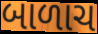
બાળાચ